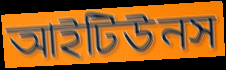
আইটিউনস